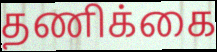
தணிக்கை